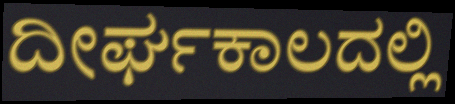
ದೀರ್ಘಕಾಲದಲ್ಲಿ